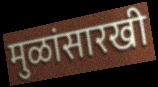
मुळांसारखी